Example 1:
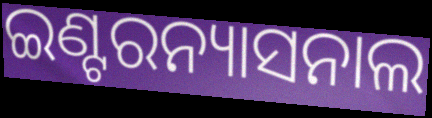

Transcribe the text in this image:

ଇଣ୍ଟରନ୍ୟାସନାଲ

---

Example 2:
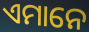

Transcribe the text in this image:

ଏମାନେ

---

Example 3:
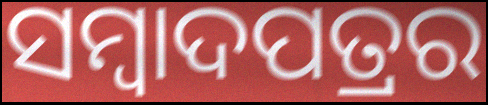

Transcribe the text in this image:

ସମ୍ବାଦପତ୍ରର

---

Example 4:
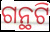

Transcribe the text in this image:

ଗନ୍ଥଟି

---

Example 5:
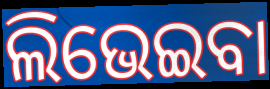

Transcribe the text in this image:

ଲିଭେଇବା